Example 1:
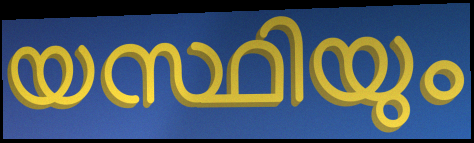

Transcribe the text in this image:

യസ്ഥിയും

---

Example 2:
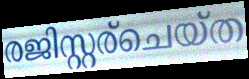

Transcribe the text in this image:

രജിസ്റ്റര്ചെയ്ത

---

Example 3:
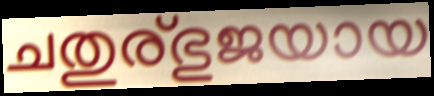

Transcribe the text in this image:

ചതുര്ഭുജയായ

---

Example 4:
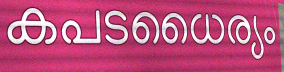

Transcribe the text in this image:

കപടധൈര്യം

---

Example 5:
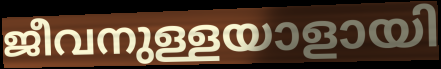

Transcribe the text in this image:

ജീവനുള്ളയാളായി